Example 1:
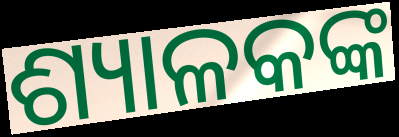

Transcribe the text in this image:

ଶ୍ୟାଳକଙ୍କ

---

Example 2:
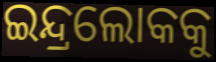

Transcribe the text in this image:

ଇନ୍ଦ୍ରଲୋକକୁ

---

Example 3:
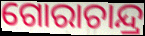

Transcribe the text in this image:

ଗୋରାଚାନ୍ଦ୍ର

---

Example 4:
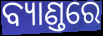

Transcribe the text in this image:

ବ୍ୟାଣ୍ଡରେ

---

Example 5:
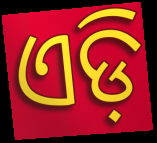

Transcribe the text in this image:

ଏଡ଼ି